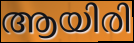
ആയിരി